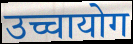
उच्चायोग